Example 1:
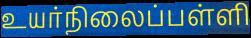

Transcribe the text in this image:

உயர்நிலைப்பள்ளி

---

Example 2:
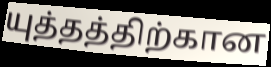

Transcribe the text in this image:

யுத்தத்திற்கான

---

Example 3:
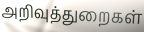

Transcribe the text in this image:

அறிவுத்துறைகள்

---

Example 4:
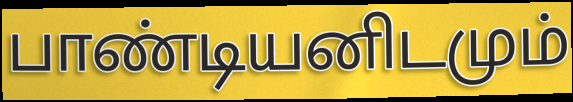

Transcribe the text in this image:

பாண்டியனிடமும்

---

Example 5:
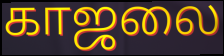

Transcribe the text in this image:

காஜலை